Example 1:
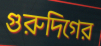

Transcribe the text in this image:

গুরুদিগের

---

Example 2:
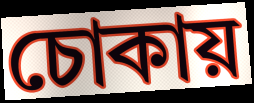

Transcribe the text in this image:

চোকায়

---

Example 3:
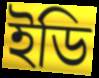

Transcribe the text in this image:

ইডি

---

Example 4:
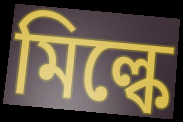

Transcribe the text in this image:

মিল্কে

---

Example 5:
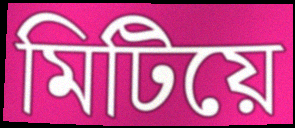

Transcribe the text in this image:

মিটিয়ে